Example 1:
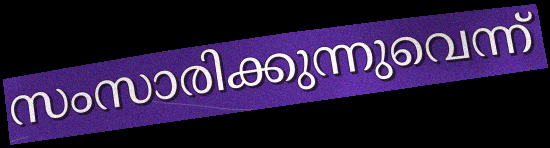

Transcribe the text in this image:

സംസാരിക്കുന്നുവെന്ന്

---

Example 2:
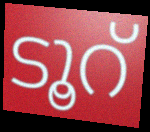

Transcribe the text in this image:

ടൂറ്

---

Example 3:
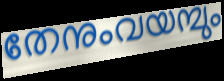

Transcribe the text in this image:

തേനുംവയമ്പും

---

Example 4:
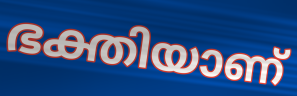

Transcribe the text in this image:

ഭക്തിയാണ്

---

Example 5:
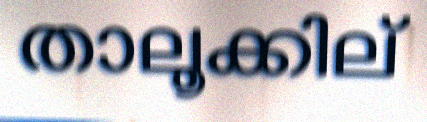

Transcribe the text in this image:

താലൂക്കില്